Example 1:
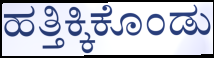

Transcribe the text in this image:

ಹತ್ತಿಕ್ಕಿಕೊಂಡು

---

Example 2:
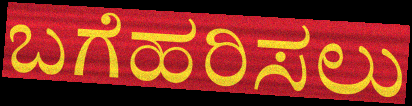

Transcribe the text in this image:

ಬಗೆಹರಿಸಲು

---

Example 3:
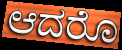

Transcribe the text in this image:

ಆದರೊ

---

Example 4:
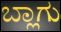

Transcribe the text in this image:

ಬ್ಲಾಗು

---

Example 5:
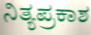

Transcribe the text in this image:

ನಿತ್ಯಪ್ರಕಾಶ